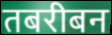
तबरीबन